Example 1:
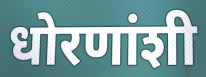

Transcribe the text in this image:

धोरणांशी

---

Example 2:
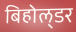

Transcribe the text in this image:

बिहोल्डर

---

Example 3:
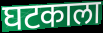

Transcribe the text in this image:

घटकाला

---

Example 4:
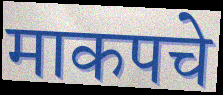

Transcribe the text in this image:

माकपचे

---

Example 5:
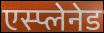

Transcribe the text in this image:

एस्प्लेनेड